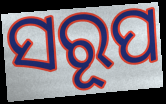
ସରୂପ